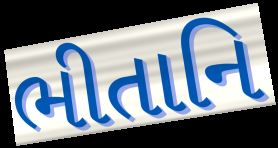
ભીતાનિ